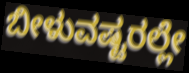
ಬೀಳುವಷ್ಟರಲ್ಲೇ